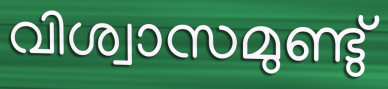
വിശ്വാസമുണ്ടു്